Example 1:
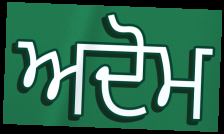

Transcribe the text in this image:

ਅਦੋਮ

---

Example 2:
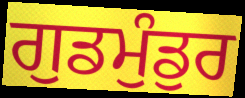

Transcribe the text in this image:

ਗੁਡਮੁੰਡੁਰ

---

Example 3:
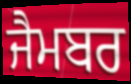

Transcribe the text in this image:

ਜੈਮਬਰ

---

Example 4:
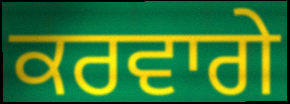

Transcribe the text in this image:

ਕਰਵਾਗੇ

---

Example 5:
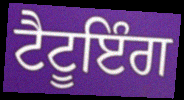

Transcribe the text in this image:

ਟੈਟੂਇੰਗ